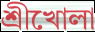
শ্রীখোলা